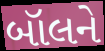
બૉલને